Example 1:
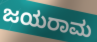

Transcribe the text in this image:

ಜಯರಾಮ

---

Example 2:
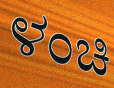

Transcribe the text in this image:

ಳಂಚಿ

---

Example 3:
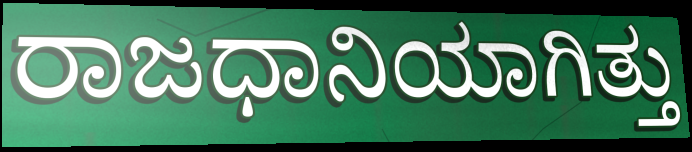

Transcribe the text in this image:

ರಾಜಧಾನಿಯಾಗಿತ್ತು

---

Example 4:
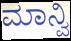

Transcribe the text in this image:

ಮಾನ್ವಿ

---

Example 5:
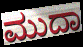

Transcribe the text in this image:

ಮುದಾ